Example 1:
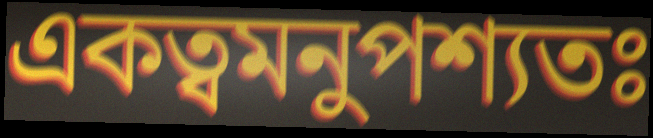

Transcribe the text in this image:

একত্বমনুপশ্যতঃ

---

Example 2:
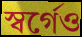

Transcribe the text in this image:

স্বর্গেও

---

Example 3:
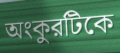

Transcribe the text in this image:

অংকুরটিকে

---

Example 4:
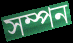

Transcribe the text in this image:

সম্পন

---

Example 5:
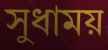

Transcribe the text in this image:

সুধাময়